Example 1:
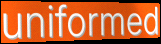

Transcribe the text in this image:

uniformed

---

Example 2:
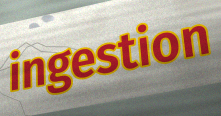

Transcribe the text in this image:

ingestion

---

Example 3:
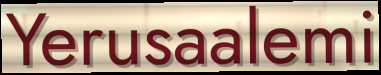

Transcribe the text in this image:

Yerusaalemi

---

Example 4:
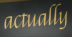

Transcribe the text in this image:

actually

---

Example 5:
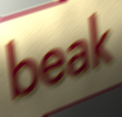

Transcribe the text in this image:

beak